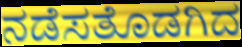
ನಡೆಸತೊಡಗಿದ